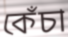
কেঁচা